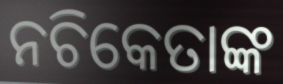
ନଚିକେତାଙ୍କ